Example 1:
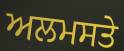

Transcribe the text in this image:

ਅਲਮਸਤੇ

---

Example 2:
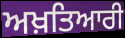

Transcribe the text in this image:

ਅਖ਼ਤਿਆਰੀ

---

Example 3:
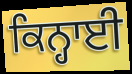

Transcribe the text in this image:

ਕਿਨ੍ਹਾਈ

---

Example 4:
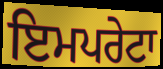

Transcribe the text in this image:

ਇਮਪਰੇਟਾ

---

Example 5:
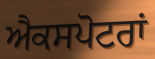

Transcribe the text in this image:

ਐਕਸਪੋਟਰਾਂ